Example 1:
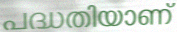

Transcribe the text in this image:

പദ്ധതിയാണ്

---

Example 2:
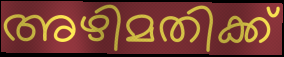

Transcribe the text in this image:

അഴിമതിക്ക്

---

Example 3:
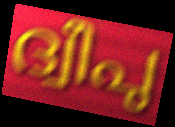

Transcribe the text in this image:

ദ്വീപു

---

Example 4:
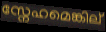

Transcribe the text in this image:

സ്നേഹമെങ്കില്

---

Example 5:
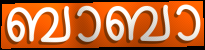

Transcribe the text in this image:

ബാബാ